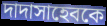
দাদাসাহেবকে